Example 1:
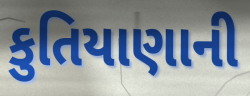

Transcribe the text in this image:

કુતિયાણાની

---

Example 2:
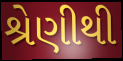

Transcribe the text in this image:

શ્રેણીથી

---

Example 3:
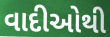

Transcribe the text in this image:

વાદીઓથી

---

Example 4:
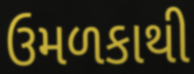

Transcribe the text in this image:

ઉમળકાથી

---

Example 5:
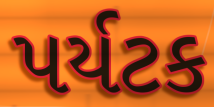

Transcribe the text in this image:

પર્યટક